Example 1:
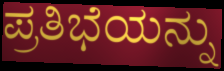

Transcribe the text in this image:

ಪ್ರತಿಭೆಯನ್ನು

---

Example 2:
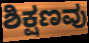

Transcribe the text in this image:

ಶಿಕ್ಷಣವು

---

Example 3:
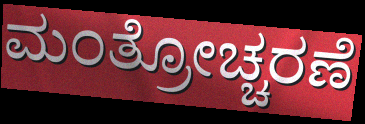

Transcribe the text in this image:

ಮಂತ್ರೋಚ್ಚರಣೆ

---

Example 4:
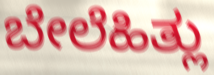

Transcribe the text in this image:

ಬೇಲೆಹಿತ್ಲು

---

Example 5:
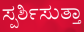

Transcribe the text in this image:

ಸ್ಪರ್ಶಿಸುತ್ತಾ